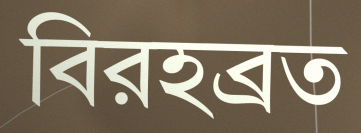
বিরহব্রত